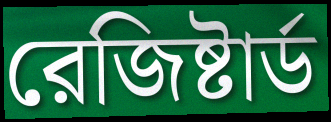
রেজিষ্টার্ড